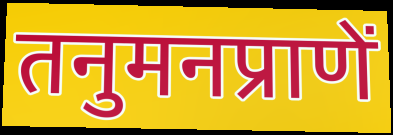
तनुमनप्राणें